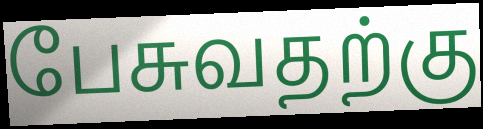
பேசுவதற்கு